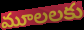
మూలలకు